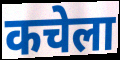
कचेला